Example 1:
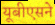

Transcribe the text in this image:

यूबीएसने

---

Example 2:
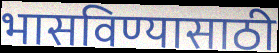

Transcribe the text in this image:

भासविण्यासाठी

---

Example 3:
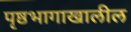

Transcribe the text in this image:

पृष्ठभागाखालील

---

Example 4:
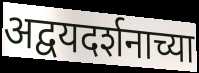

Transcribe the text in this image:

अद्वयदर्शनाच्या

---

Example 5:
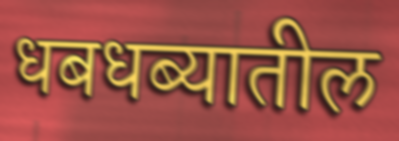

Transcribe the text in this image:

धबधब्यातील